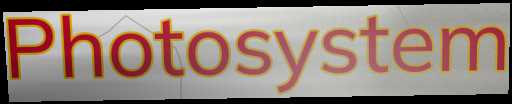
Photosystem